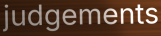
judgements